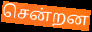
சென்றன